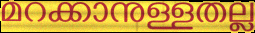
മറക്കാനുള്ളതല്ല